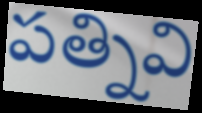
పత్నివి